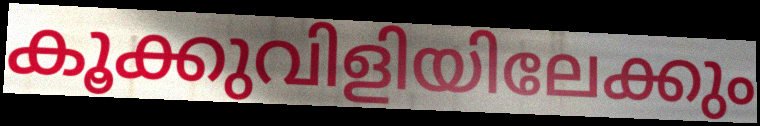
കൂക്കുവിളിയിലേക്കും